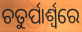
ଚତୁର୍ପାର୍ଶ୍ୱରେ